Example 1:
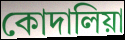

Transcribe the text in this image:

কোদালিয়া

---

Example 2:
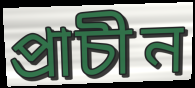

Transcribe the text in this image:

প্রাচীন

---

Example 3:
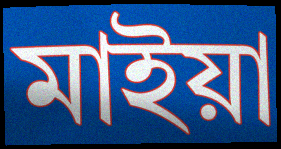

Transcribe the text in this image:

মাইয়া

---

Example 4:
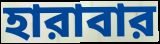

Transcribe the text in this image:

হারাবার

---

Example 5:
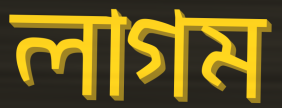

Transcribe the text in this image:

লাগম